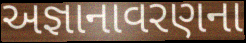
અજ્ઞાનાવરણના